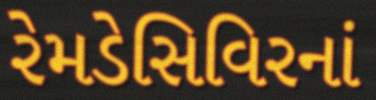
રેમડેસિવિરનાં